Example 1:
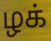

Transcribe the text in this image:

ழக்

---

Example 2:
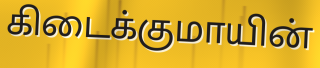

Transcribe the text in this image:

கிடைக்குமாயின்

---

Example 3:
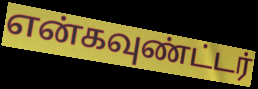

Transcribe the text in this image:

என்கவுண்ட்டர்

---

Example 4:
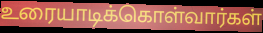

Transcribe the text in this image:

உரையாடிக்கொள்வார்கள்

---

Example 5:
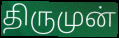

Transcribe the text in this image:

திருமுன்